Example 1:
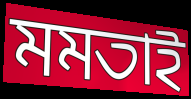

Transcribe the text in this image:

মমতাই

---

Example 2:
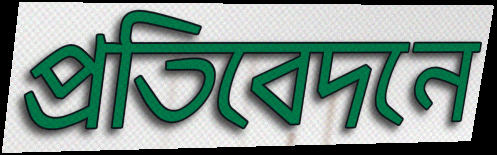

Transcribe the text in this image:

প্ৰতিবেদনে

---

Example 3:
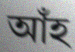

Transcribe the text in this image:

আঁহ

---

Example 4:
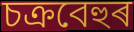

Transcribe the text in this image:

চক্ৰবেহুৰ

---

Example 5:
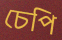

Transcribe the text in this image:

চেপি